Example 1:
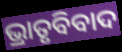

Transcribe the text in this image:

ଭ୍ରାତୃବିବାଦ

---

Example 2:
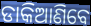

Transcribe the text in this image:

ଡାକିଆଣିବେ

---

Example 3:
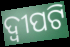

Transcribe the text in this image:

ଦ୍ୱୀପଟି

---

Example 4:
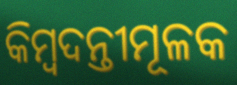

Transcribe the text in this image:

କିମ୍ବଦନ୍ତୀମୂଳକ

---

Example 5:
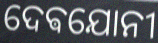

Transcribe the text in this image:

ଦେଵଯୋନୀ